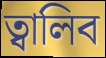
ত্বালিব